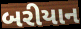
બરીયાન